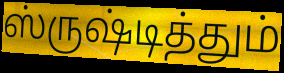
ஸ்ருஷ்டித்தும்